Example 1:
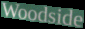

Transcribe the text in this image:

Woodside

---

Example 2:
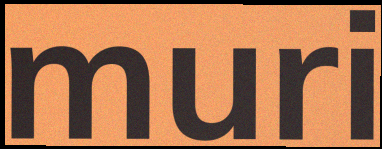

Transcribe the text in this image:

muri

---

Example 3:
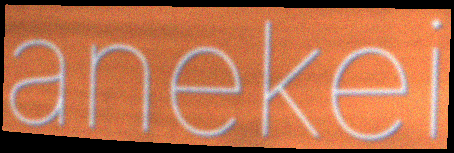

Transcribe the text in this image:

anekei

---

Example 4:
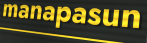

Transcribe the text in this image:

manapasun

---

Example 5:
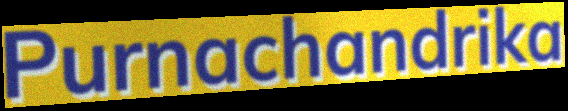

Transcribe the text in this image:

Purnachandrika